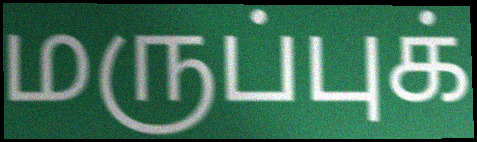
மருப்புக்